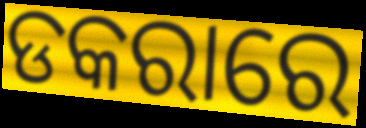
ଡକରାରେ